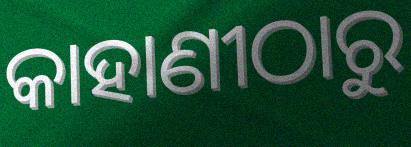
କାହାଣୀଠାରୁ